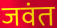
जवंत